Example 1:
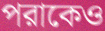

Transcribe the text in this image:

পরাকেও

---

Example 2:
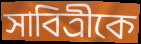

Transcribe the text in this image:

সাবিত্রীকে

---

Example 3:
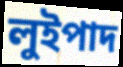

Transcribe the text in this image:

লুইপাদ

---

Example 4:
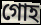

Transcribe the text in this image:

গোহ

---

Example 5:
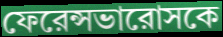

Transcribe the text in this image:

ফেরেন্সভারোসকে